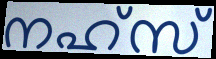
നഹ്സ്